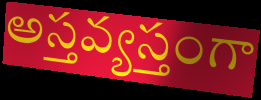
అస్తవ్యస్తంగా